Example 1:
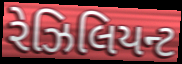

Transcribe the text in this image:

રેઝિલિયન્ટ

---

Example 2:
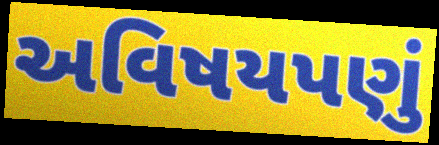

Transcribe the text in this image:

અવિષયપણું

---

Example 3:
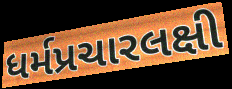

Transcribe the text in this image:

ધર્મપ્રચારલક્ષી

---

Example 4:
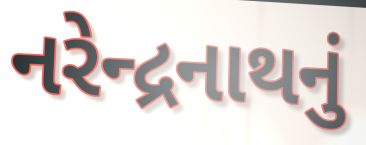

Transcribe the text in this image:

નરેન્દ્રનાથનું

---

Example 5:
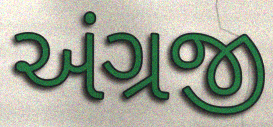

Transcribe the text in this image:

અંગ્રજી